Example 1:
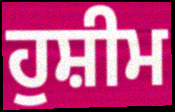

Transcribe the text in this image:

ਹੁਸ਼ੀਮ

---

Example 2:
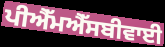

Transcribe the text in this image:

ਪੀਐੱਮਐੱਸਬੀਵਾਈ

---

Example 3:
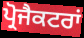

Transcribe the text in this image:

ਪ੍ਰੋਜੈਕਟਰਾਂ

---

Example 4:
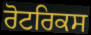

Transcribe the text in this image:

ਰੋਟਰਿਕਸ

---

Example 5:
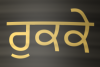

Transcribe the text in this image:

ਰੁਕਕੇ